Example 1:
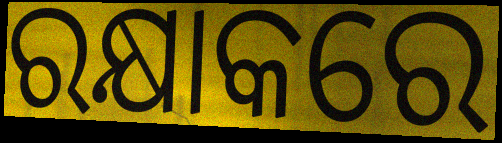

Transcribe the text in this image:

ରକ୍ଷାକରେ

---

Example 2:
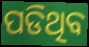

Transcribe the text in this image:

ପଡିଥିବ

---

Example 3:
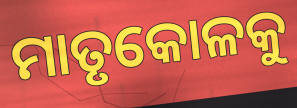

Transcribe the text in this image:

ମାତୃକୋଳକୁ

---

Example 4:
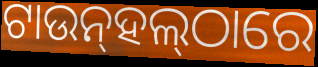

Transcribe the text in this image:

ଟାଉନ୍‌ହଲ୍‌ଠାରେ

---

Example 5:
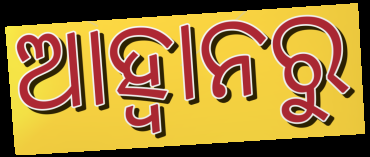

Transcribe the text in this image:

ଆହ୍ବାନରୁ